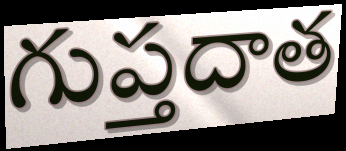
గుప్తదాత